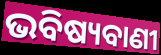
ଭବିଷ୍ୟବାଣୀ